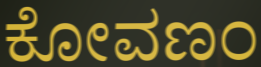
ಕೋವಣಂ